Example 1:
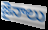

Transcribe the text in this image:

జైనాలు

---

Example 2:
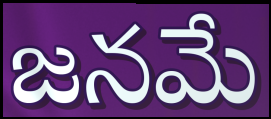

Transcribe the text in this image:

జనమే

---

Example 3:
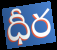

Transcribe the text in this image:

ధీర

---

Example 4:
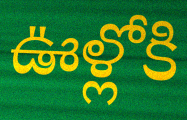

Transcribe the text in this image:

ఊళ్లోకి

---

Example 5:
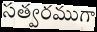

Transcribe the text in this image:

సత్వరముగా